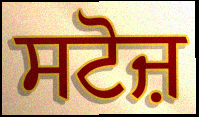
ਸਟੋਜ਼